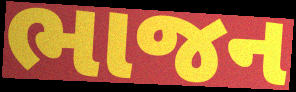
ભાજન